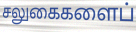
சலுகைகளைப்